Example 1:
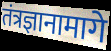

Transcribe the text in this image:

तंत्रज्ञानामागे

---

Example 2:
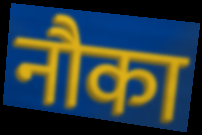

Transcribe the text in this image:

नौका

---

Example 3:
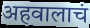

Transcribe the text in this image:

अहवालाचं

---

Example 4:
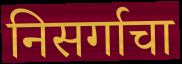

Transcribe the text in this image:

निसर्गाचा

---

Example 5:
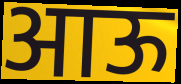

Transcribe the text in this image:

आऊ